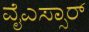
ವೈಎಸ್ಸಾರ್